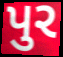
પુર